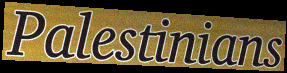
Palestinians